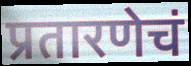
प्रतारणेचं